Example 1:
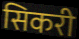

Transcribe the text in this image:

सिकरी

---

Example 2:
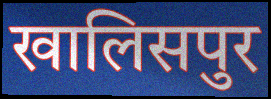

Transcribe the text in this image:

खालिसपुर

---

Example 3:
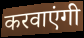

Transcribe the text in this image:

करवाएंगी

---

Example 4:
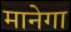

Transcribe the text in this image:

मानेगा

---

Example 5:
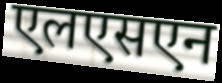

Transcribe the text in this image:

एलएसएन